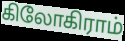
கிலோகிராம்